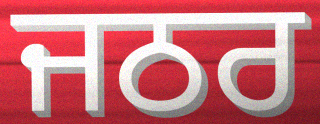
ਜਠਰ